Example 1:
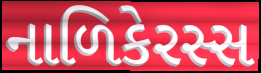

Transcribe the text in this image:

નાળિકેરસ્સ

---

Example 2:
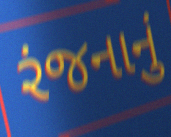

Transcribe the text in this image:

રંજનાનું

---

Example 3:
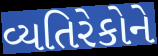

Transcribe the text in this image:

વ્યતિરેકોને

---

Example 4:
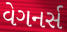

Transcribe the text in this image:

વેગનર્સ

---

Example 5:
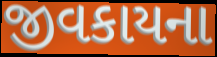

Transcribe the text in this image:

જીવકાયના